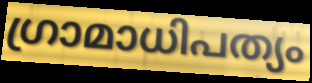
ഗ്രാമാധിപത്യം